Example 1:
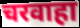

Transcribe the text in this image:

चरवाहा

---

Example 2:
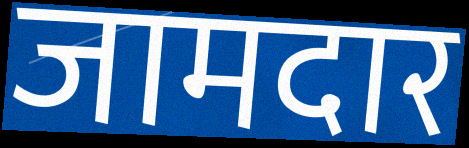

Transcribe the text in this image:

जामदार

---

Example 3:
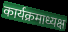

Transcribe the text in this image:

कार्यक्रमाध्यक्ष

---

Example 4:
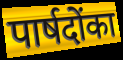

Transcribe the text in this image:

पार्षदोंका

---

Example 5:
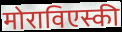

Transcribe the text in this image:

मोराविएस्की